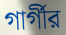
গার্গীর